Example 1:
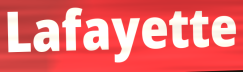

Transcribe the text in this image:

Lafayette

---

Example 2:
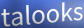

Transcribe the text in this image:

talooks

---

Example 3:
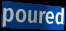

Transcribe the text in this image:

poured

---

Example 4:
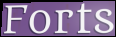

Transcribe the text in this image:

Forts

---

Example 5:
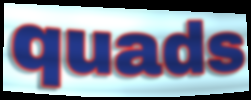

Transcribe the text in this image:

quads